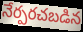
నేర్పరచబడిన